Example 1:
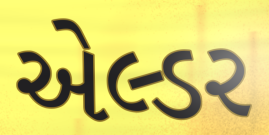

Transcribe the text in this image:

એલ્ડર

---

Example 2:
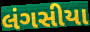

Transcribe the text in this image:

લંગસીયા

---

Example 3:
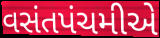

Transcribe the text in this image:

વસંતપંચમીએ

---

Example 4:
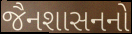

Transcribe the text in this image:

જૈનશાસનનો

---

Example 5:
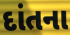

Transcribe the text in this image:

દાંતના